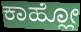
ಕಾಹ್ಲೋ